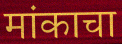
मांकाचा